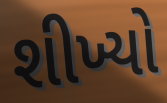
શીખ્યો